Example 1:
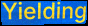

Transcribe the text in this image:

Yielding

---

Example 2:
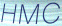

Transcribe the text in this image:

HMC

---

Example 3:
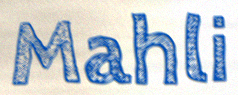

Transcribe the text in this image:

Mahli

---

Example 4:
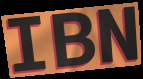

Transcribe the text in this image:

IBN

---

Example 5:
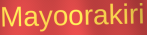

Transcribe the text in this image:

Mayoorakiri